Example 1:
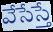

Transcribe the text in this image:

వేసేస్తే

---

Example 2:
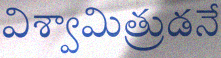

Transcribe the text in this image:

విశ్వామిత్రుడనే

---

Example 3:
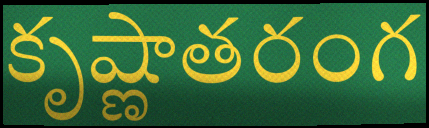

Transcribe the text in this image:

కృష్ణాతరంగ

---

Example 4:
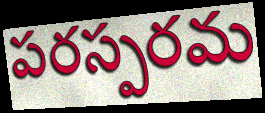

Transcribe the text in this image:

పరస్పరమ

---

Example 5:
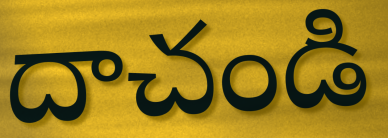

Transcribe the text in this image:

దాచండి